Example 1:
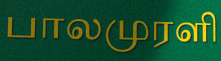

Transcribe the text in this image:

பாலமுரளி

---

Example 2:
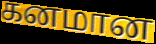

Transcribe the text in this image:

கனமான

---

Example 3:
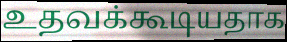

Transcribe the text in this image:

உதவக்கூடியதாக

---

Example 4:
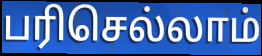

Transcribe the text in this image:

பரிசெல்லாம்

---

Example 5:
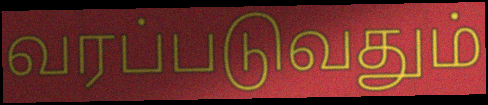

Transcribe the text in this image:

வரப்படுவதும்